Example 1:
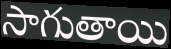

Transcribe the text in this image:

సాగుతాయి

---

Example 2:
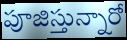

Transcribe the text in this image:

పూజిస్తున్నారో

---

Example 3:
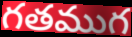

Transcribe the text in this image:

గతముగ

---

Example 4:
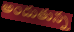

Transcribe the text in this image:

అందుతున్న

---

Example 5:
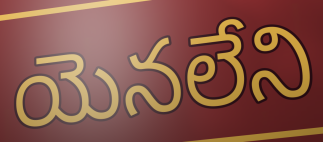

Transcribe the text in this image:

యెనలేని